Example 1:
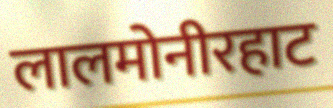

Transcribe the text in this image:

लालमोनीरहाट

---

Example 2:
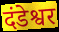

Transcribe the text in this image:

दंडेश्वर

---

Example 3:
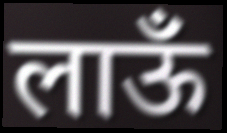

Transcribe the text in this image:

लाऊँ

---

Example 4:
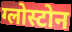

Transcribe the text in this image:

ग्लोस्टोन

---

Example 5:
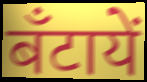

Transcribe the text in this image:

बँटायें